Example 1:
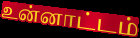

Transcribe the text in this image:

உன்னாட்டம்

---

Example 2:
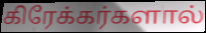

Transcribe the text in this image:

கிரேக்கர்களால்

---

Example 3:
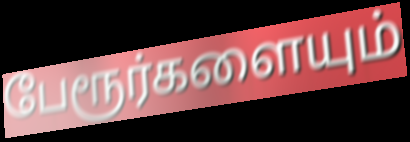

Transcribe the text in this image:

பேரூர்களையும்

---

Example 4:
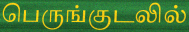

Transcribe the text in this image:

பெருங்குடலில்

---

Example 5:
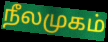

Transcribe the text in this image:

நீலமுகம்